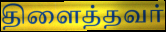
திளைத்தவர்